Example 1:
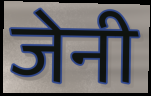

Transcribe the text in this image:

जेनी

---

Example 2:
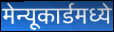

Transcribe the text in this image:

मेन्यूकार्डमध्ये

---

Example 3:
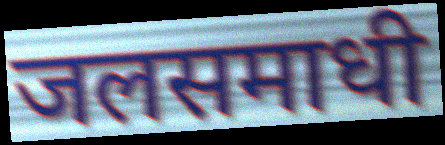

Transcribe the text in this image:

जलसमाधी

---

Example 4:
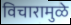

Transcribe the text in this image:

विचारामुळे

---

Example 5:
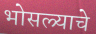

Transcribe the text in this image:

भोसल्याचे